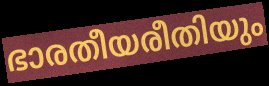
ഭാരതീയരീതിയും